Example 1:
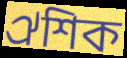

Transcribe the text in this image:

ঐশিক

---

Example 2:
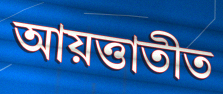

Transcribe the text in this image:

আয়ত্তাতীত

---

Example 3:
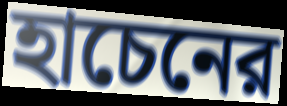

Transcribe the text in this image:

হাচেনের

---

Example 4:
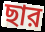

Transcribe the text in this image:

ছার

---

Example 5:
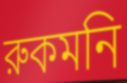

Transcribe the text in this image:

রুকমনি